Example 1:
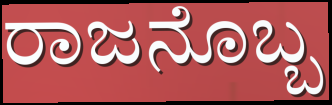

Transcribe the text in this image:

ರಾಜನೊಬ್ಬ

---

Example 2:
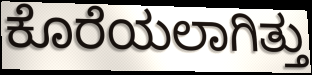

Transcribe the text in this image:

ಕೊರೆಯಲಾಗಿತ್ತು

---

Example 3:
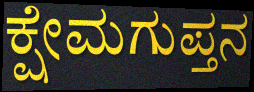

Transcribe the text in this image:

ಕ್ಷೇಮಗುಪ್ತನ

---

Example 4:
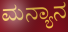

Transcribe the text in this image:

ಮನ್ಯಾನ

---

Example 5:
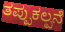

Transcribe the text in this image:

ತಪ್ಪುಕಲ್ಪನೆ